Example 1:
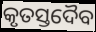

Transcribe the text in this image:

କୃତସ୍ତଦୈବ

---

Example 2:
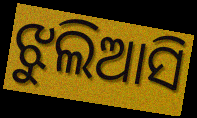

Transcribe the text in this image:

ଝୁଲିଆସି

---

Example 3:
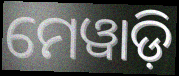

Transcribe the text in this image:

ମେୱାଡ଼ି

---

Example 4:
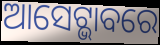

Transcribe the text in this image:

ଆସେଟ୍ଭାବରେ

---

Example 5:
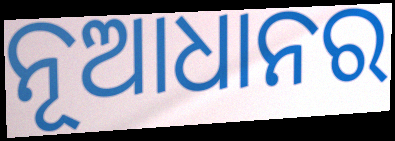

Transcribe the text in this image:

ନୂଆଧାନର